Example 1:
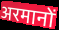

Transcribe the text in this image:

अरमानों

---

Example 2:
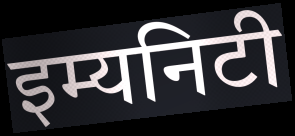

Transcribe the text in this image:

इम्यनिटी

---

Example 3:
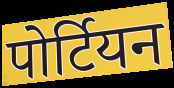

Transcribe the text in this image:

पोर्टियन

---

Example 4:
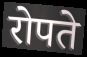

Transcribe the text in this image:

रोपते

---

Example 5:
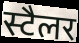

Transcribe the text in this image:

स्टैलर